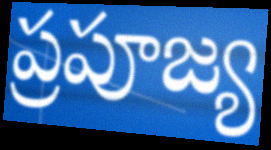
ప్రపూజ్య